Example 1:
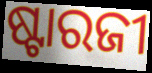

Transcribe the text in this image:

ଷ୍ଟାରଜୀ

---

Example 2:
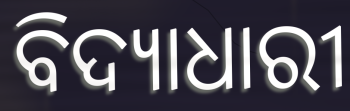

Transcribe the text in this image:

ବିଦ୍ୟାଧାରୀ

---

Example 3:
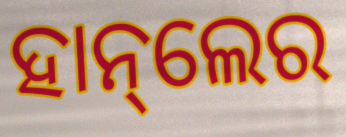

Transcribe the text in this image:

ହାନ୍‌ଲେର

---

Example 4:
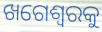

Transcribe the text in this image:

ଖଗେଶ୍ୱରକୁ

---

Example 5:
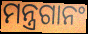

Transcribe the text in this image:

ମନ୍ତ୍ରଗାନଂ